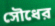
সৌধের